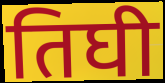
तिघी